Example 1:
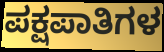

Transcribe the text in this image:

ಪಕ್ಷಪಾತಿಗಳ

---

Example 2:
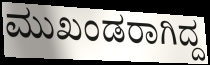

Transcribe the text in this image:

ಮುಖಂಡರಾಗಿದ್ದ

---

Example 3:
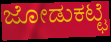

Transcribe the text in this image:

ಜೋಡುಕಟ್ಟೆ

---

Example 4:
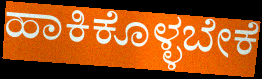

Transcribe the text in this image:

ಹಾಕಿಕೊಳ್ಳಬೇಕೆ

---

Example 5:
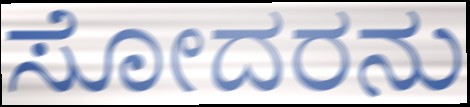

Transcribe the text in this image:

ಸೋದರನು